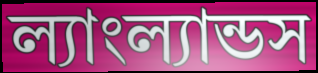
ল্যাংল্যান্ডস